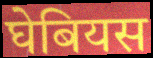
घेबियस